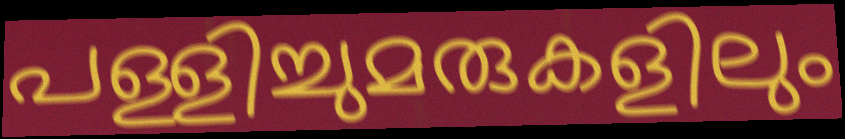
പള്ളിച്ചുമരുകളിലും